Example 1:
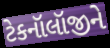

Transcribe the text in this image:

ટેકનૉલૉજીને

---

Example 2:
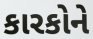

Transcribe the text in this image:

કારકોને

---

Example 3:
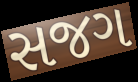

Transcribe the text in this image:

સજગ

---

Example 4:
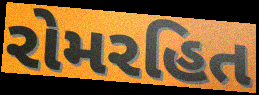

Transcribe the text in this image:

રોમરહિત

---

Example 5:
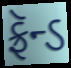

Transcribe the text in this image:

ફ્રૅન્ડ